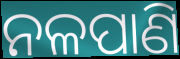
ନଳପାଣି